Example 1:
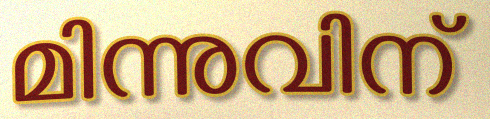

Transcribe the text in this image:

മിന്നുവിന്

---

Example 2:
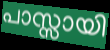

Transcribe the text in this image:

പാസ്സായി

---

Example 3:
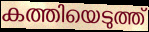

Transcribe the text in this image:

കത്തിയെടുത്ത്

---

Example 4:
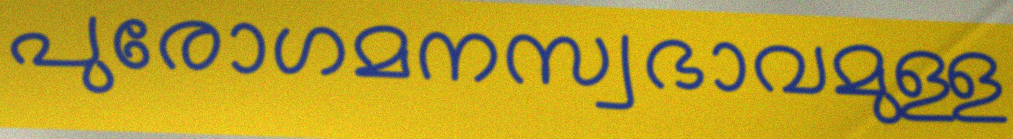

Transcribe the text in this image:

പുരോഗമനസ്വഭാവമുള്ള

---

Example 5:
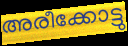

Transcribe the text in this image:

അരീക്കോട്ടു